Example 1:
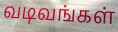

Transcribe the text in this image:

வடிவங்கள்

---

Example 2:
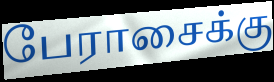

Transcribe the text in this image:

பேராசைக்கு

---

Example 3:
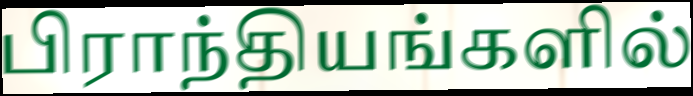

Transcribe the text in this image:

பிராந்தியங்களில்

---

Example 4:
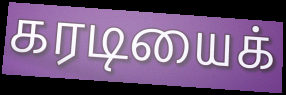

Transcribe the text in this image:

கரடியைக்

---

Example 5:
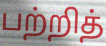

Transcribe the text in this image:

பற்றித்